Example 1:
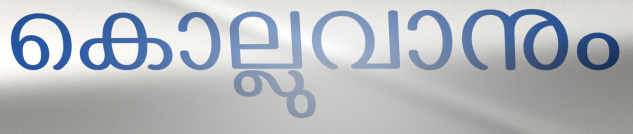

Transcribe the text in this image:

കൊല്ലുവാനും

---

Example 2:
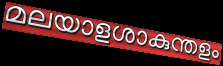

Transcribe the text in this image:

മലയാളശാകുന്തളം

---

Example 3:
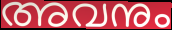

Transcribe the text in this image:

അവനും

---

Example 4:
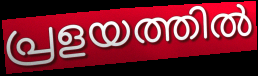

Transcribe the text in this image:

പ്രളയത്തിൽ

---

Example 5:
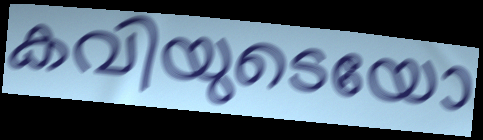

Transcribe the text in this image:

കവിയുടെയോ